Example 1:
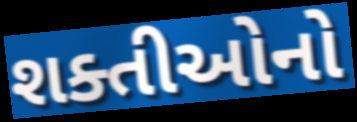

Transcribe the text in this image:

શક્તીઓનો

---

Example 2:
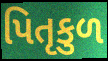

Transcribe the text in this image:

પિતૃકુળ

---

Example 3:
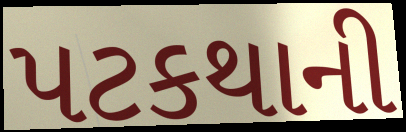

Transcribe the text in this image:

પટકથાની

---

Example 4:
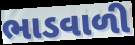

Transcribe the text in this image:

ભાડવાળી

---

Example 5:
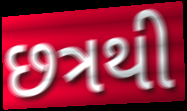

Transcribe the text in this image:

છત્રથી